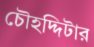
চৌহদ্দিটার